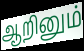
ஆறினும்